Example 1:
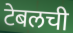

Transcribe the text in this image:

टेबलची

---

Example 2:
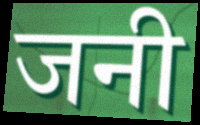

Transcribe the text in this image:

जनी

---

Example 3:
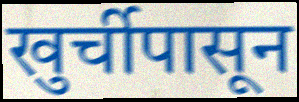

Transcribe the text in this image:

खुर्चीपासून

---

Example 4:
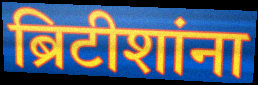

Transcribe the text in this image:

ब्रिटीशांना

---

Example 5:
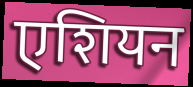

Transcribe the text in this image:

एशियन